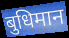
बुधिमान